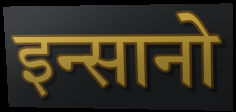
इन्सानो